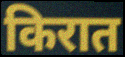
किरात